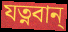
যত্নবান্